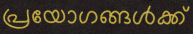
പ്രയോഗങ്ങൾക്ക്